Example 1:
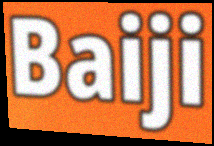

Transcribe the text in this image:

Baiji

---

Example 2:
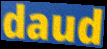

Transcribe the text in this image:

daud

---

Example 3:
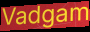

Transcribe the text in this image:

Vadgam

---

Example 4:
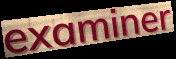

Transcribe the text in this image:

examiner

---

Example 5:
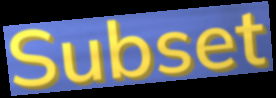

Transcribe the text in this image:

Subset